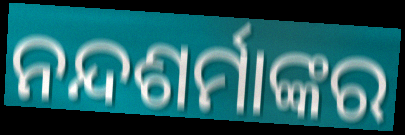
ନନ୍ଦଶର୍ମାଙ୍କର